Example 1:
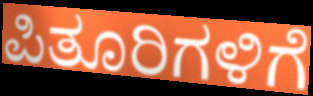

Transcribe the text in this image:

ಪಿತೂರಿಗಳಿಗೆ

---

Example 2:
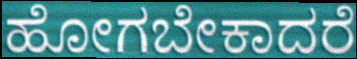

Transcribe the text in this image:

ಹೋಗಬೇಕಾದರೆ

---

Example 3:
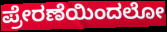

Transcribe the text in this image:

ಪ್ರೇರಣೆಯಿಂದಲೋ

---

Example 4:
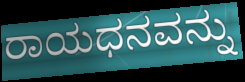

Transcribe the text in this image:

ರಾಯಧನವನ್ನು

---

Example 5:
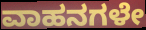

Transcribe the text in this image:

ವಾಹನಗಳೇ